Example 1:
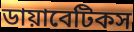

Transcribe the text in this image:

ডায়াবেটিকস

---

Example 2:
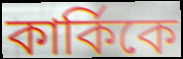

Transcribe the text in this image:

কার্কিকে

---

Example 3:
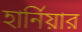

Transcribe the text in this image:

হার্নিয়ার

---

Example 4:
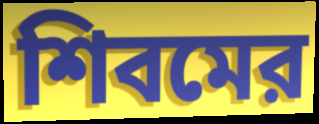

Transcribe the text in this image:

শিবমের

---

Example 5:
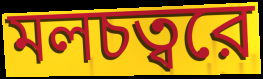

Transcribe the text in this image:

মলচত্বরে